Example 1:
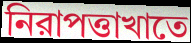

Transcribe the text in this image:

নিরাপত্তাখাতে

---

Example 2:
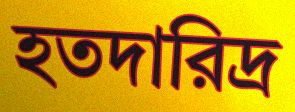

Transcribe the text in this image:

হতদারিদ্র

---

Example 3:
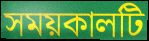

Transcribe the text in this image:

সময়কালটি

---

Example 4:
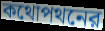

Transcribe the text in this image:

কথোপথনের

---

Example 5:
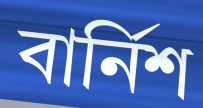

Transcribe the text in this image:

বার্নিশ